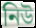
নিউ